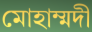
মোহাম্মদী